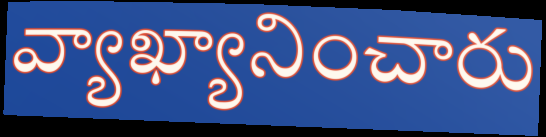
వ్యాఖ్యానించారు